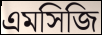
এমসিজি